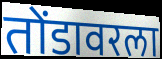
तोंडावरला